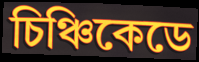
চিঞ্চিকেডে